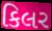
કિલર